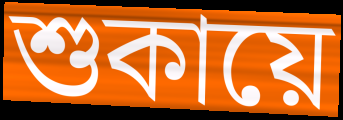
শুকায়ে